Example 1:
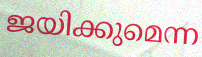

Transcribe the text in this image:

ജയിക്കുമെന്ന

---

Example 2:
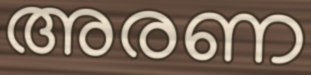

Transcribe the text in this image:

അരണ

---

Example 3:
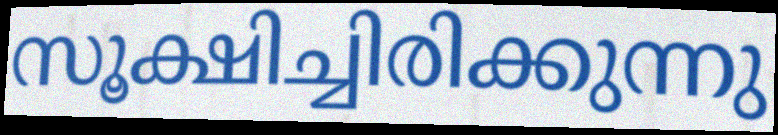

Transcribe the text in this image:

സൂക്ഷിച്ചിരിക്കുന്നു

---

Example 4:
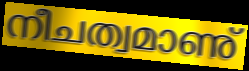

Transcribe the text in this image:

നീചത്വമാണു്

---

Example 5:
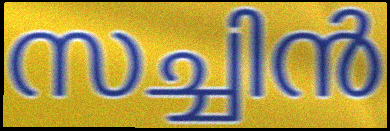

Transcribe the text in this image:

സച്ചിൻ